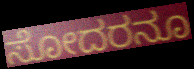
ಸೋದರನೂ